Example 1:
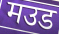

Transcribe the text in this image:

मउड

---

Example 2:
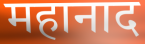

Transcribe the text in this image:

महानाद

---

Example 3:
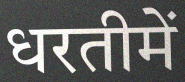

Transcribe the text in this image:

धरतीमें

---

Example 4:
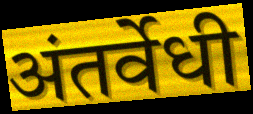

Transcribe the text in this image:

अंतर्वेधी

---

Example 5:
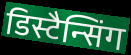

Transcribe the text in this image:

डिस्टैन्सिंग